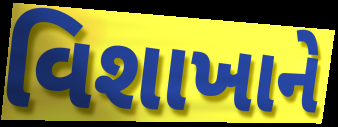
વિશાખાને